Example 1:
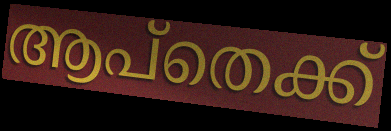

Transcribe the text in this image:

ആപ്തെക്ക്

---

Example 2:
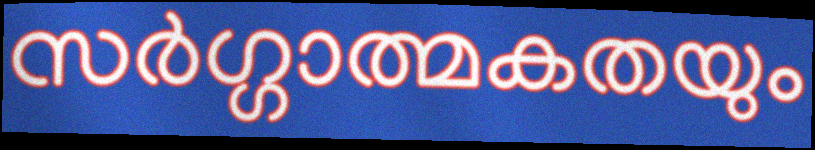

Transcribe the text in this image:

സർഗ്ഗാത്മകതയും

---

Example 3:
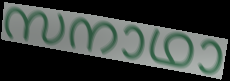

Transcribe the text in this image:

സനാഥാ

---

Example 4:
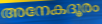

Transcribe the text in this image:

അനേകദൂരം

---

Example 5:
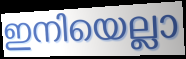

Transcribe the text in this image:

ഇനിയെല്ലാ